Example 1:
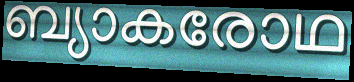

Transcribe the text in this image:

ബ്യാകരോഥ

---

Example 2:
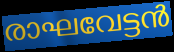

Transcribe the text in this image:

രാഘവേട്ടൻ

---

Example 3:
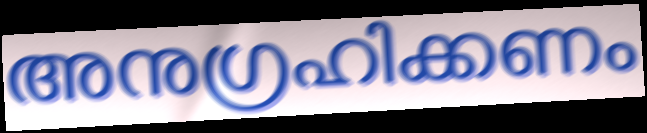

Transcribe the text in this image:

അനുഗ്രഹിക്കണം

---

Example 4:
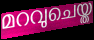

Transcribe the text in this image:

മറവുചെയ്ത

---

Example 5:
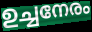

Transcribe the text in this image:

ഉച്ചനേരം